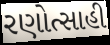
રણોત્સાહી